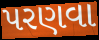
પરણવા